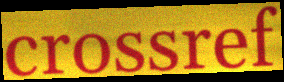
crossref